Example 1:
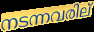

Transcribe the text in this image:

നടന്നവരില്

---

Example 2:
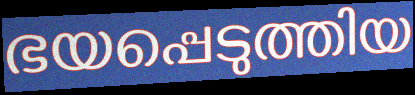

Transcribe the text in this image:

ഭയപ്പെടുത്തിയ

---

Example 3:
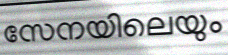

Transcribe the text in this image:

സേനയിലെയും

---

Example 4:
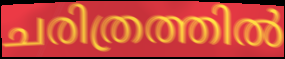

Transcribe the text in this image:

ചരിത്രത്തിൽ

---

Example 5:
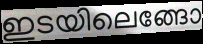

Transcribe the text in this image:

ഇടയിലെങ്ങോ